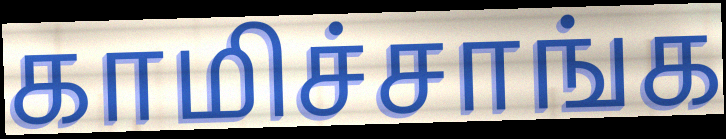
காமிச்சாங்க